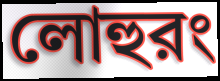
লোহুরং